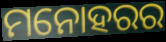
ମନୋହରର